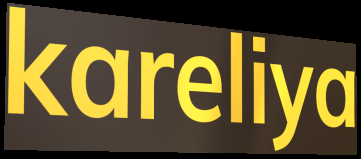
kareliya